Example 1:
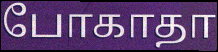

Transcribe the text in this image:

போகாதா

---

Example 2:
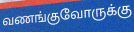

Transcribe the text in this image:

வணங்குவோருக்கு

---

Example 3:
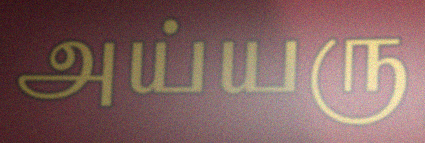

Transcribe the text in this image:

அய்யரு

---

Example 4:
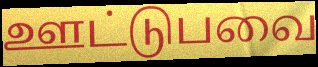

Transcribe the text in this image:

ஊட்டுபவை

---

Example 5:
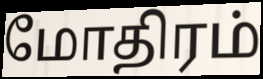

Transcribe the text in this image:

மோதிரம்